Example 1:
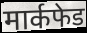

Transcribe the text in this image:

मार्कफेड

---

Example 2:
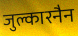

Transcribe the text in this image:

जुल्कारनैन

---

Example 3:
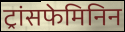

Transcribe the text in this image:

ट्रांसफेमिनिन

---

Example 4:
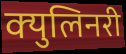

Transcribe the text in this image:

क्युलिनरी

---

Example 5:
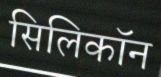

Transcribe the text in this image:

सिलिकॉन